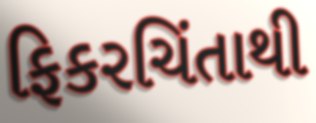
ફિકરચિંતાથી